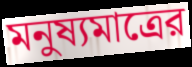
মনুষ্যমাত্রের